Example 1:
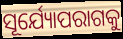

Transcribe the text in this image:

ସୂର୍ଯ୍ୟୋପରାଗକୁ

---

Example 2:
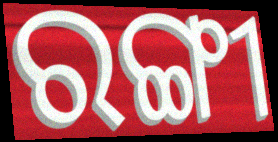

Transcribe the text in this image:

ରଙ୍ଗୀ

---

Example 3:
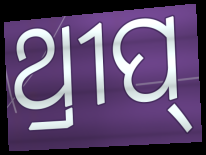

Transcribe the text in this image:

ଥ୍ରୀପ୍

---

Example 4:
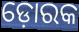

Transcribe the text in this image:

ଡ଼ୋରକ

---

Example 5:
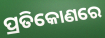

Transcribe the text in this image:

ପ୍ରତିକୋଣରେ